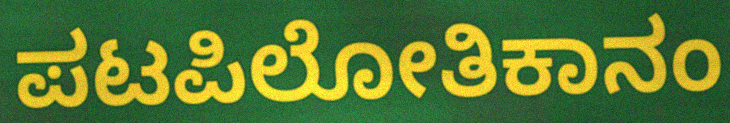
ಪಟಪಿಲೋತಿಕಾನಂ